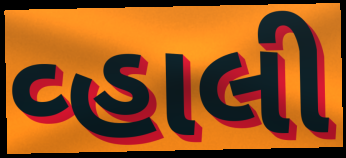
વ્હાલી